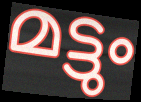
മട്ടും